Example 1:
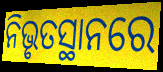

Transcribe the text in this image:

ନିଭୃତସ୍ଥାନରେ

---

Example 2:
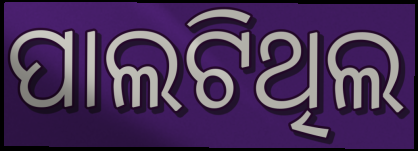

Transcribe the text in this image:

ପାଲଟିଥିଲ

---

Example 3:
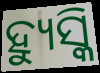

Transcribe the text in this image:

ହ୍ୟୁସ୍କି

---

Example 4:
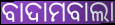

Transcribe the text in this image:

ବାଦାମବାଲା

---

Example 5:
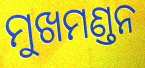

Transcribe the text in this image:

ମୁଖମଣ୍ଡନ